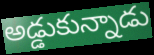
అడ్డుకున్నాడు